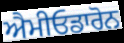
ਐਮੀਓਡਾਰੋਨ